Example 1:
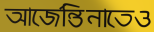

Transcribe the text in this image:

আর্জেন্তিনাতেও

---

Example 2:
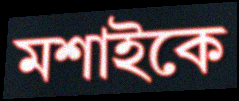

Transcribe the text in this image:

মশাইকে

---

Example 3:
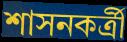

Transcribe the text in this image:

শাসনকর্ত্রী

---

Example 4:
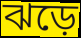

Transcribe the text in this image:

ঝড়ে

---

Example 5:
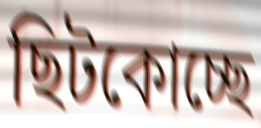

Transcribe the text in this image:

ছিটকোচ্ছে